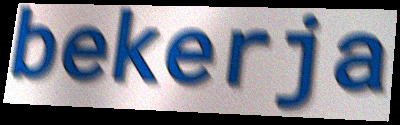
bekerja